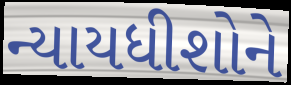
ન્યાયધીશોને